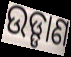
ଉଡ୍ଡାଣ